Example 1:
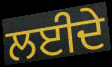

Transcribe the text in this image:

ਲਈਦੇ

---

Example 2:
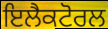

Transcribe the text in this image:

ਇਲੈਕਟੋਰਲ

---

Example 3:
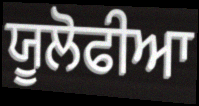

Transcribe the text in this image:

ਯੂਲੋਫੀਆ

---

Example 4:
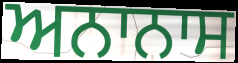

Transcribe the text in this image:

ਅਨਾਨਾਸ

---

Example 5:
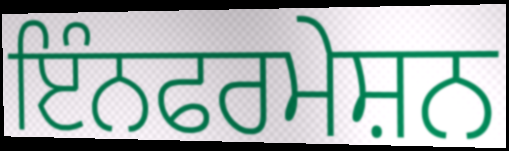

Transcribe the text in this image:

ਇੰਨਫਰਮੇਸ਼ਨ